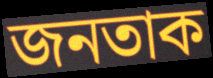
জনতাক